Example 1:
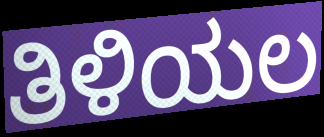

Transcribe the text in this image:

ತಿಳಿಯಲ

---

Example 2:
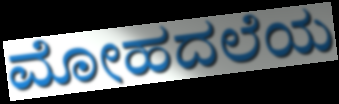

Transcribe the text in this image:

ಮೋಹದಲೆಯ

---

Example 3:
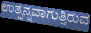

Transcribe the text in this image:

ಉತ್ಪನ್ನವಾಗುತ್ತಿರುವ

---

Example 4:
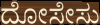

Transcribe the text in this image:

ದೋಸೇಸು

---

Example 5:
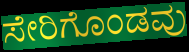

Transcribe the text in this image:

ಸೇರಿಗೊಂಡವು